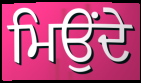
ਮਿਉਂਦੇ